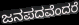
ಜನಪದವೆಂದರೆ